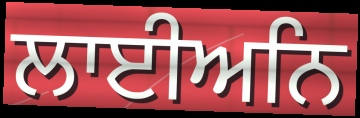
ਲਾਈਅਨਿ